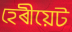
হেৰীয়েট